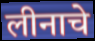
लीनाचे